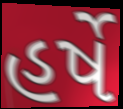
હર્ષે